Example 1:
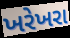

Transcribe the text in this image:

ખરેખરા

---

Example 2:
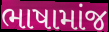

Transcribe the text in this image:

ભાષામાંજ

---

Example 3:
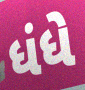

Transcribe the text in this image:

ધંધે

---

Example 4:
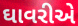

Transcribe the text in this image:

ઘાવરીએ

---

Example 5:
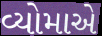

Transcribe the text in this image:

વ્યોમાએ